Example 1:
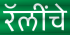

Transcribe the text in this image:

रॅलींचे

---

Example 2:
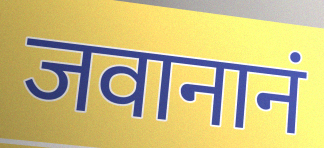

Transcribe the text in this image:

जवानानं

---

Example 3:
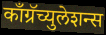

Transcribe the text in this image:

काँग्रॅच्युलेशन्स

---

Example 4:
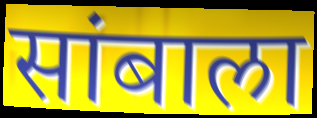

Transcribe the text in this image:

सांबाला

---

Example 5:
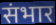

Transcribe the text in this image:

संभार